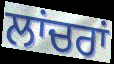
ਲਾਂਚਰਾਂ